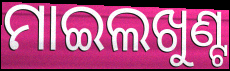
ମାଇଲଖୁଣ୍ଟ